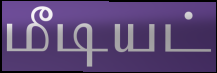
மீடியட்